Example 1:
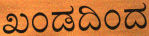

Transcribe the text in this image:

ಖಂಡದಿಂದ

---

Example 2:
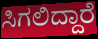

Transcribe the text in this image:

ಸಿಗಲಿದ್ದಾರೆ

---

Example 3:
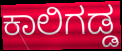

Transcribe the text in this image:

ಕಾಲಿಗಡ್ಡ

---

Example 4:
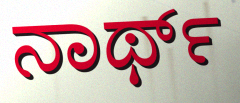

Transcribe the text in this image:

ನಾರ್ಥ್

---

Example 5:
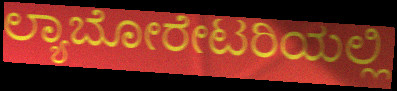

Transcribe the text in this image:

ಲ್ಯಾಬೋರೇಟರಿಯಲ್ಲಿ